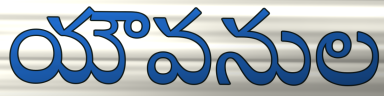
యౌవనుల